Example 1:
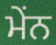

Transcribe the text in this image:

ਮੇਂਨ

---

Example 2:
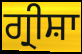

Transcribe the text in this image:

ਗ੍ਰੀਸ਼ਾ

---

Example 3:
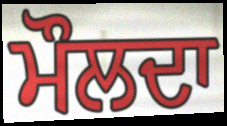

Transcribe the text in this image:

ਮੌਲਦਾ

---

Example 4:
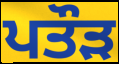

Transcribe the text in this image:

ਪਤੌੜ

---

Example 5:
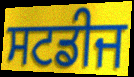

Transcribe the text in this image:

ਸਟਡੀਜ